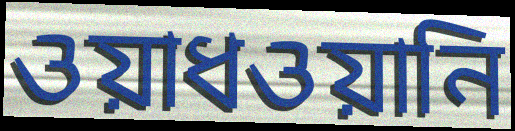
ওয়াধওয়ানি